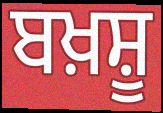
ਬਖ਼ਸ਼ੂ